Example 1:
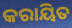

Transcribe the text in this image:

କରାୟିତ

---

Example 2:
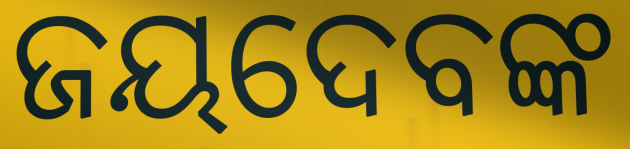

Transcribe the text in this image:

ଜୟଦେବଙ୍କ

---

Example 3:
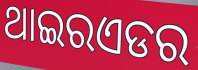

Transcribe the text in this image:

ଥାଇରଏଡର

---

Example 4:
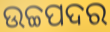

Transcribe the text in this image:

ଉଚ୍ଚପଦର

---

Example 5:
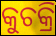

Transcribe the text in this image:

କୁଚକ୍ରି